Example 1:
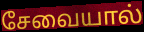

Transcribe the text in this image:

சேவையால்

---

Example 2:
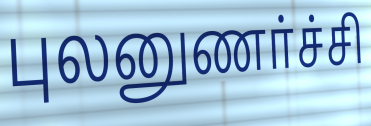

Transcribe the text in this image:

புலனுணர்ச்சி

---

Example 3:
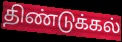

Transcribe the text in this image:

திண்டுக்கல்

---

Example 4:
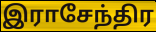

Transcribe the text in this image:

இராசேந்திர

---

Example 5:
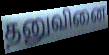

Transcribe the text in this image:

தனுவினை